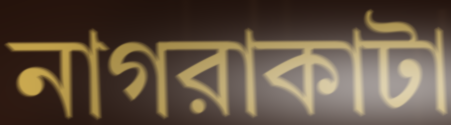
নাগরাকাটা